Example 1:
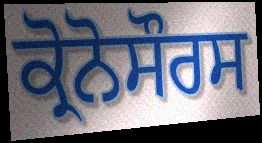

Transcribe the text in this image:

ਕ੍ਰੋਨੋਸੌਰਸ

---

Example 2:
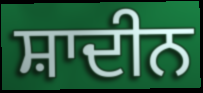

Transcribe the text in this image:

ਸ਼ਾਦੀਨ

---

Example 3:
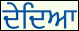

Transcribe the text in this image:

ਦੇਦਿਆ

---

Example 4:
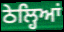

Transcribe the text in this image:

ਠੇਲ੍ਹਿਆਂ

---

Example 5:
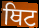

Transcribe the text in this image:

ਥਿਟ